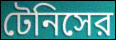
টেনিসের